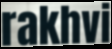
rakhvi